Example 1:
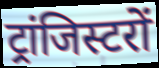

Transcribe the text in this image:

ट्रांजिस्टरों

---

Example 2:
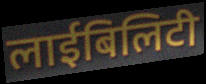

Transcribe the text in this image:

लाईबिलिटी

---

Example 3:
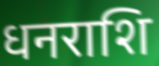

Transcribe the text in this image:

धनराशि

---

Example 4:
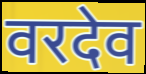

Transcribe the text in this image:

वरदेव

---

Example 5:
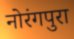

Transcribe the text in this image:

नोरंगपुरा